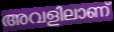
അവളിലാണ്